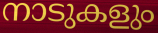
നാടുകളും